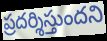
ప్రదర్శిస్తుందని